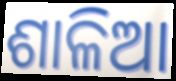
ଶାଳିଆ